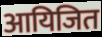
आयिजित